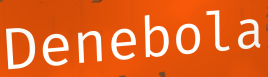
Denebola